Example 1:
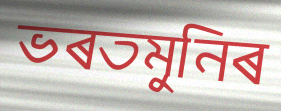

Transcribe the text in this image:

ভৰতমুনিৰ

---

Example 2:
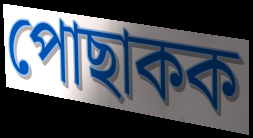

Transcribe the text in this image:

পোছাকক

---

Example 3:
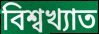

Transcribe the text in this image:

বিশ্বখ্যাত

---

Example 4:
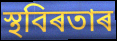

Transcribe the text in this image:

স্থবিৰতাৰ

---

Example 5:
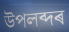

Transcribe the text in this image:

উপলব্দৰ